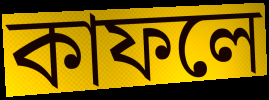
কাফলে